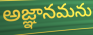
అజ్ఞానమను